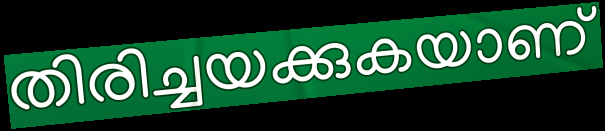
തിരിച്ചയക്കുകയാണ്